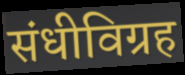
संधीविग्रह